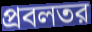
প্রবলতর